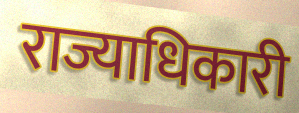
राज्याधिकारी